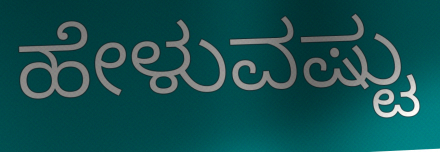
ಹೇಳುವಷ್ಟು